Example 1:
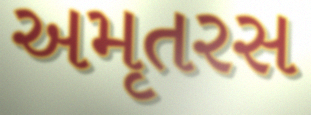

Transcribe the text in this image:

અમૃતરસ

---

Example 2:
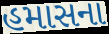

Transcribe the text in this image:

હમાસના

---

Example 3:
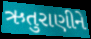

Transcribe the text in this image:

ઋતુરાણીને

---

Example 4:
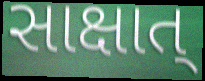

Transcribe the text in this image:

સાક્ષાત્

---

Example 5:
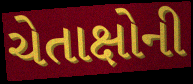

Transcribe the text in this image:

ચેતાક્ષોની